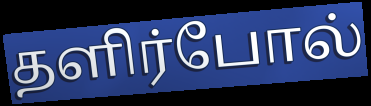
தளிர்போல்